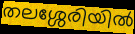
തലശ്ശേരിയിൽ